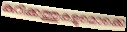
കുറിക്കത്തുകളുമൊക്കെ